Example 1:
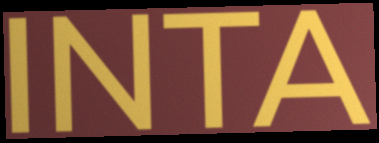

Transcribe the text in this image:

INTA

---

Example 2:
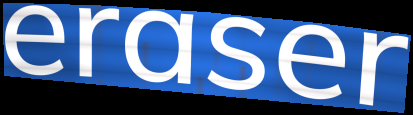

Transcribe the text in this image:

eraser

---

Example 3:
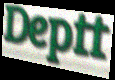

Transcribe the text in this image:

Deptt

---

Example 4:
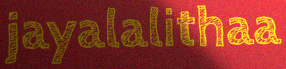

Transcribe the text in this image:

jayalalithaa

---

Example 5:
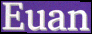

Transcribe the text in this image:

Euan